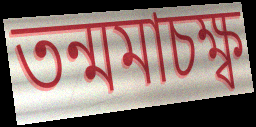
তন্মমাচক্ষ্ব